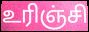
உரிஞ்சி